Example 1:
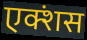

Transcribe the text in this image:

एक्शंस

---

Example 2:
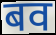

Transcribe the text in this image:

बव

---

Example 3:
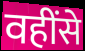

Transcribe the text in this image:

वहींसे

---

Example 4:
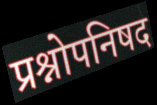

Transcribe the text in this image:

प्रश्नोपनिषद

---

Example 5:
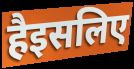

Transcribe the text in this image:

हैइसलिए